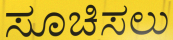
ಸೂಚಿಸಲು